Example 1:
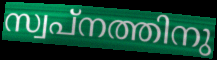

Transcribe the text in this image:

സ്വപ്നത്തിനു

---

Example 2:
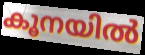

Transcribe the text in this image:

കൂനയിൽ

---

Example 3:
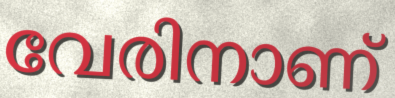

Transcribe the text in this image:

വേരിനാണ്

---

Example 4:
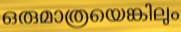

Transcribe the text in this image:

ഒരുമാത്രയെങ്കിലും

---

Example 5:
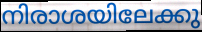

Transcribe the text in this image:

നിരാശയിലേക്കു